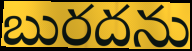
బురదను